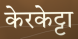
केरकेट्टा